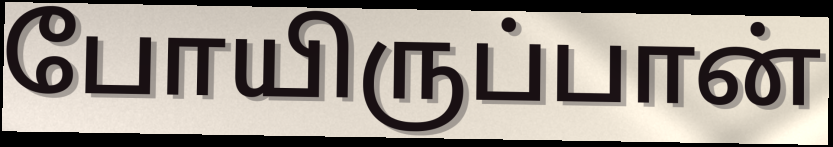
போயிருப்பான்